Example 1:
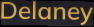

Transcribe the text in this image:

Delaney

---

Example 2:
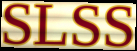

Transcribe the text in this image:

SLSS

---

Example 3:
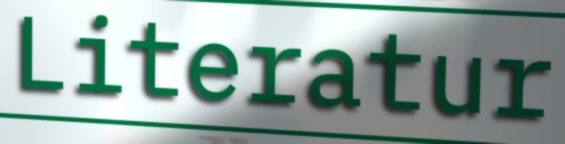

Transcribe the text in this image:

Literatur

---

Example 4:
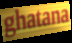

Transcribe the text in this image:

ghatana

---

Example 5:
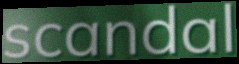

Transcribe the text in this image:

scandal